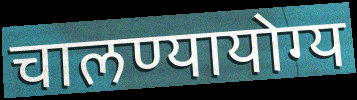
चालण्यायोग्य